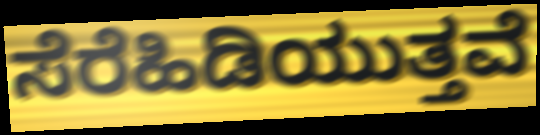
ಸೆರೆಹಿಡಿಯುತ್ತವೆ